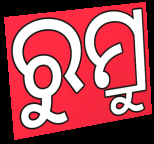
ରୁମ୍ରୁ